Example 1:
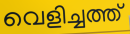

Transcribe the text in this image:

വെളിച്ചത്ത്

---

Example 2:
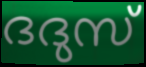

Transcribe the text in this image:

ദദുസ്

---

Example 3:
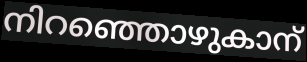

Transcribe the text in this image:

നിറഞ്ഞൊഴുകാന്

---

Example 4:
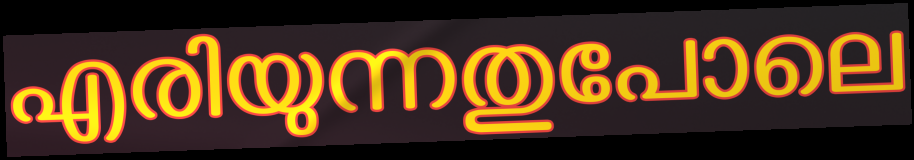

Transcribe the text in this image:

എരിയുന്നതുപോലെ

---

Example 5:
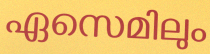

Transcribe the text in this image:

ഏസെമിലും